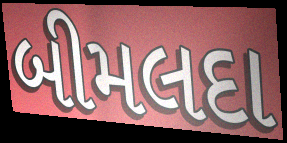
બીમલદા